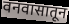
वनवासातून